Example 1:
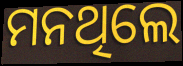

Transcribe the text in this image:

ମନଥିଲେ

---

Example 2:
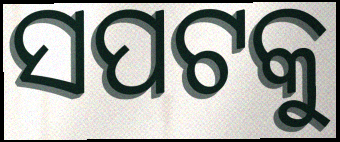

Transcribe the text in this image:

ସପଟକୁ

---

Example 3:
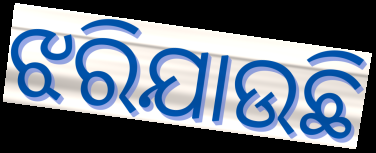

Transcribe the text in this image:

ଝରିଯାଉଛି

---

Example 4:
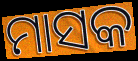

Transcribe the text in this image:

ମାସକ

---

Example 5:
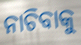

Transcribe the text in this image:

ନାଚିବାକୁ